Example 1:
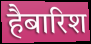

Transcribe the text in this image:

हैबारिश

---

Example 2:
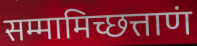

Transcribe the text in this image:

सम्मामिच्छत्ताणं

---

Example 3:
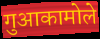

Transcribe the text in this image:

गुआकामोले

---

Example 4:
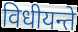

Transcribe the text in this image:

विधीयन्ते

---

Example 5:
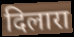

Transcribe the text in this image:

दिलारा